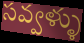
సవ్వళ్ళు